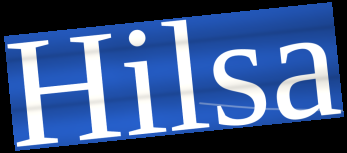
Hilsa